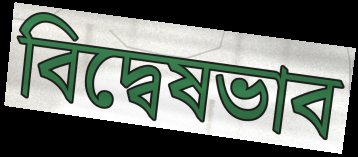
বিদ্বেষভাব